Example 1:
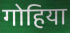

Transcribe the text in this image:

गोहिया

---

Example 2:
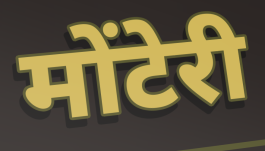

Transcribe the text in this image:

मोंटेरी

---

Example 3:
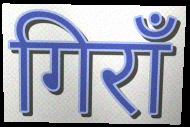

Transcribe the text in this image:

गिराँ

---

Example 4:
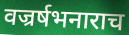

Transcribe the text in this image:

वज्रर्षभनाराच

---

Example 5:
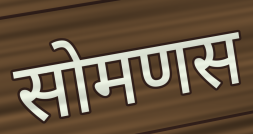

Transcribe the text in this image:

सोमणस